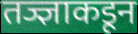
तज्ज्ञाकडून